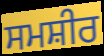
ਸਮਸ਼ੀਰ